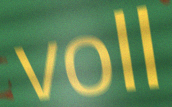
voll